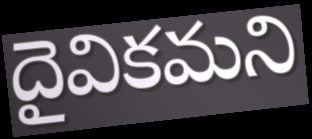
దైవికమని